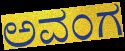
ಅವಂಗ